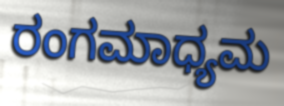
ರಂಗಮಾಧ್ಯಮ